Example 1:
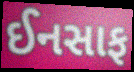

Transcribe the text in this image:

ઈનસાફ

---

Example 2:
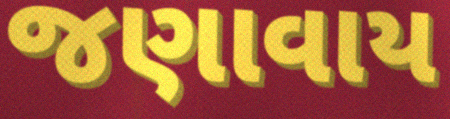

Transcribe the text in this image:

જણાવાય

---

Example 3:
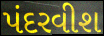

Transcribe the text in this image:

પંદરવીશ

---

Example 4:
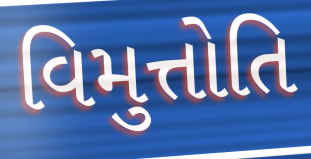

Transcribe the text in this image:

વિમુત્તોતિ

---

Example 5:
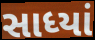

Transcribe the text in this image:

સાધ્યાં